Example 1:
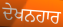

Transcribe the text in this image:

ਦੇਖਨਹਾਰ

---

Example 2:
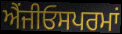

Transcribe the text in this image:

ਐਂਜੀਓਸਪਰਮਾਂ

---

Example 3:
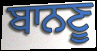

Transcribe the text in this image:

ਬਾਨਣੂ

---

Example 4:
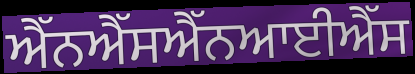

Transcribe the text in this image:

ਐੱਨਐੱਸਐੱਨਆਈਐੱਸ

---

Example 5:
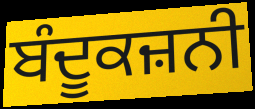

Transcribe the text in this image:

ਬੰਦੂਕਜ਼ਨੀ